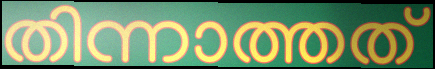
തിന്നാത്തത്